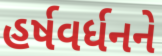
હર્ષવર્ધનને